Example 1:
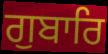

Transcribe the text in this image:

ਗੁਬਾਰਿ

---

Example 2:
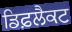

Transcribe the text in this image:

ਡਿਫ਼ਲੈਕਟ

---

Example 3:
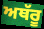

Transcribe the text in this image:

ਅਥੱਰੂ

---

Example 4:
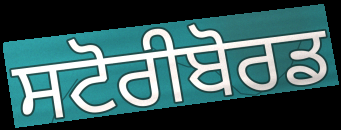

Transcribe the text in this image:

ਸਟੋਰੀਬੋਰਡ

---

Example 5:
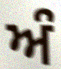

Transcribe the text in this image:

ਅੰ